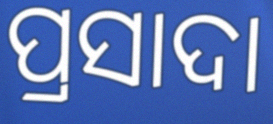
ପ୍ରସାଦା